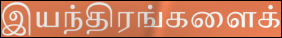
இயந்திரங்களைக்